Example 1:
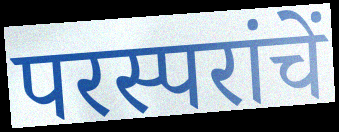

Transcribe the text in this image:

परस्परांचें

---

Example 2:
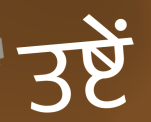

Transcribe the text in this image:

उष्टें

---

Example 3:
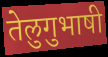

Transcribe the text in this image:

तेलुगुभाषी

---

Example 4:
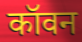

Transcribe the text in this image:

कॉवन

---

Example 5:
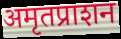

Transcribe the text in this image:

अमृतप्राशन